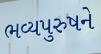
ભવ્યપુરુષને